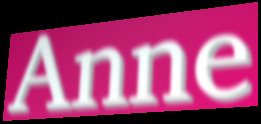
Anne